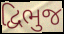
દ્વિભુજ